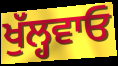
ਖੁੱਲ੍ਹਵਾਓ